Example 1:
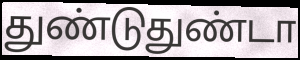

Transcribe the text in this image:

துண்டுதுண்டா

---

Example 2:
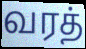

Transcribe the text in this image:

வரத்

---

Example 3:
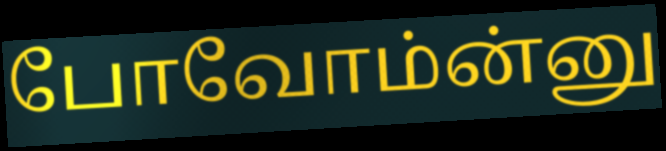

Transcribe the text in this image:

போவோம்ன்னு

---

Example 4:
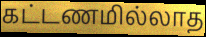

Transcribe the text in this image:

கட்டணமில்லாத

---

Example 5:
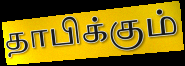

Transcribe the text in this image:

தாபிக்கும்